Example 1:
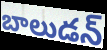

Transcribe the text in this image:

బాలుడన్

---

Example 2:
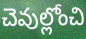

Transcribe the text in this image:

చెవుల్లోంచి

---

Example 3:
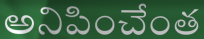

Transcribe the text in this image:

అనిపించేంత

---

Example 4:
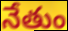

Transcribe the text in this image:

నేతుం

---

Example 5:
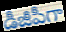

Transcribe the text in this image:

డీజీపీగా